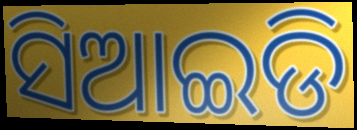
ସିଆଇଡି